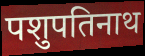
पशुपतिनाथ